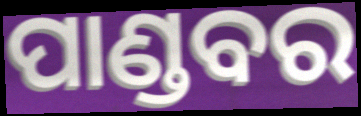
ପାଣ୍ଡବର